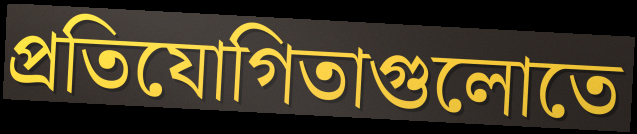
প্রতিযোগিতাগুলোতে